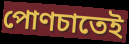
পোণচাতেই